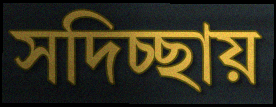
সদিচ্ছায়